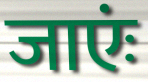
जाएंः